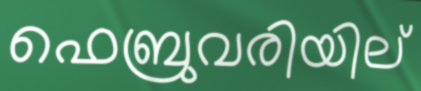
ഫെബ്രുവരിയില്